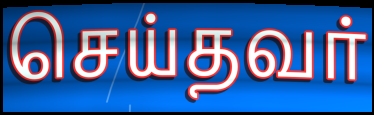
செய்தவர்